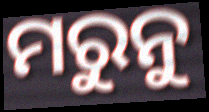
ମରୁନୁ